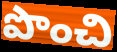
పొంచి